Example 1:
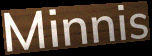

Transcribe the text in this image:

Minnis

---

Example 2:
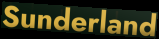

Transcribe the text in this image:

Sunderland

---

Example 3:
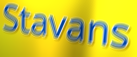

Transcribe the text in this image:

Stavans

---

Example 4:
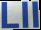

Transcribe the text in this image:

LII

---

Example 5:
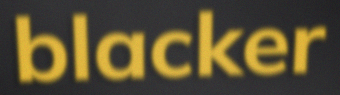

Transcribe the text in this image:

blacker